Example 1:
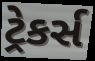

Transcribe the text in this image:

ટ્રેકર્સ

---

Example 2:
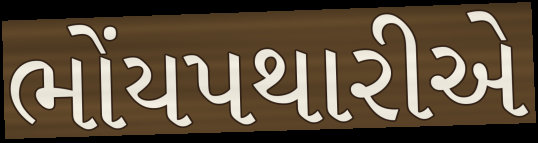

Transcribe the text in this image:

ભોંયપથારીએ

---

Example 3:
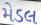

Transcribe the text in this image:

મેડલ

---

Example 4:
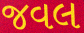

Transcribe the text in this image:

જવલ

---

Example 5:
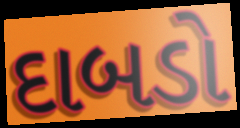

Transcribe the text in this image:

દાબડો